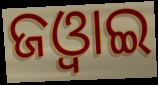
ଜଓ୍ବାଇ